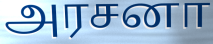
அரசனா